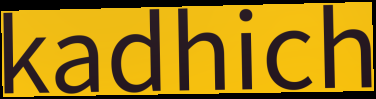
kadhich